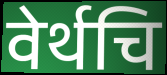
वेर्थचि